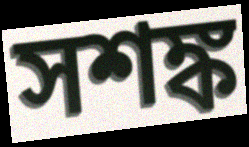
সশঙ্ক